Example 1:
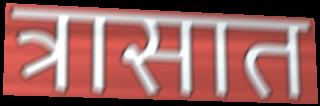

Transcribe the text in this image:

त्रासात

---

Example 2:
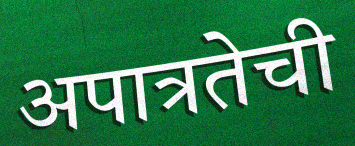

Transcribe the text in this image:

अपात्रतेची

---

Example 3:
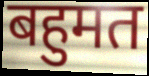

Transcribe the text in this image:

बहुमत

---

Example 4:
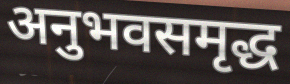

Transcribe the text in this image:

अनुभवसमृद्ध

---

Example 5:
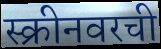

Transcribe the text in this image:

स्क्रीनवरची